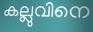
കല്ലുവിനെ